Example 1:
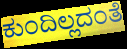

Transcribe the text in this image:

ಕುಂದಿಲ್ಲದಂತೆ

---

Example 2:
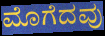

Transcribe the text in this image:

ಮೊಗೆದವು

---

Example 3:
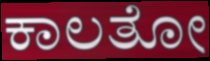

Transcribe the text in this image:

ಕಾಲತೋ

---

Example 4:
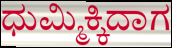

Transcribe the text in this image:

ಧುಮ್ಮಿಕ್ಕಿದಾಗ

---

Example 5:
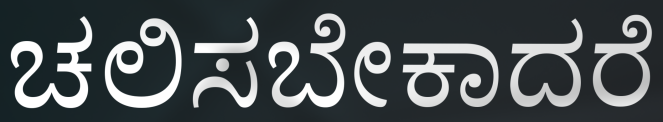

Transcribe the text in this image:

ಚಲಿಸಬೇಕಾದರೆ